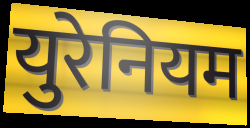
युरेनियम